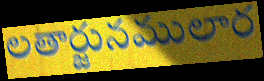
లతార్జునములార